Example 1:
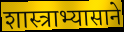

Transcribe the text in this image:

शास्त्राभ्यासाने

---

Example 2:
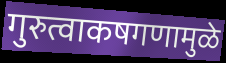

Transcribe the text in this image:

गुरुत्वाकषगणामुळे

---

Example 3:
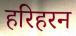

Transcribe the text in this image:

हरिहरन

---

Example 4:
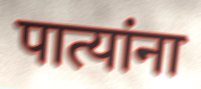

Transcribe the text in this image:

पात्यांना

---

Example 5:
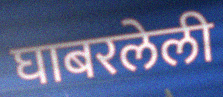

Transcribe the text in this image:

घाबरलेली